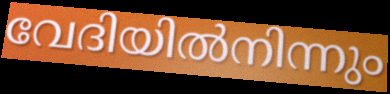
വേദിയിൽനിന്നും